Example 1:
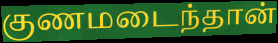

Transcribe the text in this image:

குணமடைந்தான்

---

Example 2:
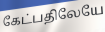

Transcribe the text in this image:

கேட்பதிலேயே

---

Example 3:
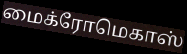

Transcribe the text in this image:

மைக்ரோமெகாஸ்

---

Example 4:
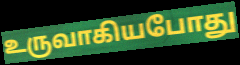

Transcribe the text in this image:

உருவாகியபோது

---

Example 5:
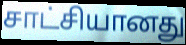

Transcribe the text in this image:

சாட்சியானது